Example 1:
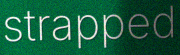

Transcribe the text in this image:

strapped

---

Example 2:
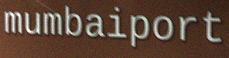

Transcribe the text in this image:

mumbaiport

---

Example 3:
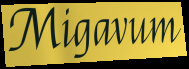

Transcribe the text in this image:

Migavum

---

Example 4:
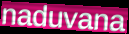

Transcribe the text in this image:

naduvana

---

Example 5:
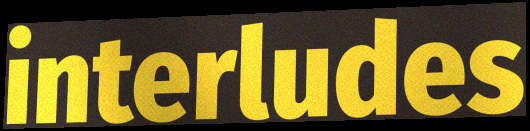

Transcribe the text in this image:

interludes